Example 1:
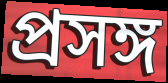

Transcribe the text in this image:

প্রসঙ্গ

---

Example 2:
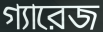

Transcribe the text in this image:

গ্যারেজ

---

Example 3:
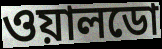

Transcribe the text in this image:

ওয়ালডো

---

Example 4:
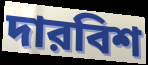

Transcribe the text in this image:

দারবিশ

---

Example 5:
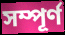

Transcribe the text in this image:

সম্পূর্ণ